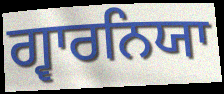
ਗ੍ਵਾਰਨਿਯਾ